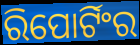
ରିପୋର୍ଟିଂର